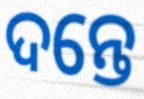
ଦନ୍ତେ